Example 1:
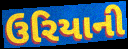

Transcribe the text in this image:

ઉરિયાની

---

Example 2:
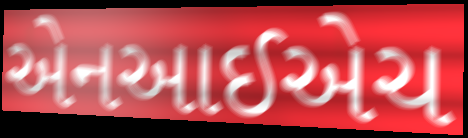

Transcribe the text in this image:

એનઆઈએચ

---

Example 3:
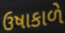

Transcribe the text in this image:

ઉષાકાળે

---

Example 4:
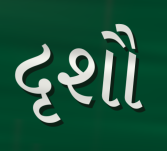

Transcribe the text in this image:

દૃશૌ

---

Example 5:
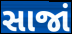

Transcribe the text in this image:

સાજાં